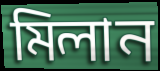
মিলান